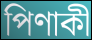
পিণাকী